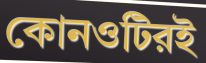
কোনওটিরই